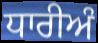
ਧਾਰੀਅੰ